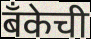
बँकेची